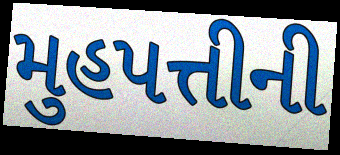
મુહપત્તીની